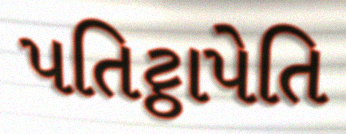
પતિટ્ઠાપેતિ